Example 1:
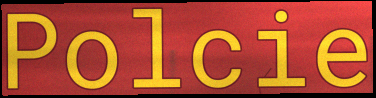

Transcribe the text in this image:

Polcie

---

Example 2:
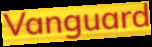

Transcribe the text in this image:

Vanguard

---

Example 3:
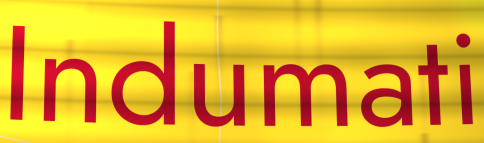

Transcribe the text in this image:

Indumati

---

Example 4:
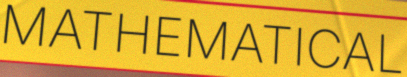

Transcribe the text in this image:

MATHEMATICAL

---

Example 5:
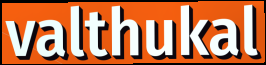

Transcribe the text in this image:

valthukal